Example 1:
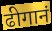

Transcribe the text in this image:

ढीगानं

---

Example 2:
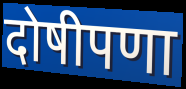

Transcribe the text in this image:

दोषीपणा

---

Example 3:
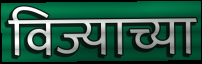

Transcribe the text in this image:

विज्याच्या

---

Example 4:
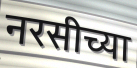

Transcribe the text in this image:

नरसीच्या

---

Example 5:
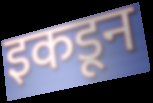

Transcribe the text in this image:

इकडून